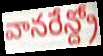
వానరేన్ద్రో